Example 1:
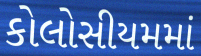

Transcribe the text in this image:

કોલોસીયમમાં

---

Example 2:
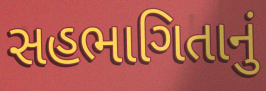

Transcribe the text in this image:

સહભાગિતાનું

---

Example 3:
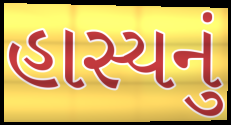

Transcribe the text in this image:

હાસ્યનું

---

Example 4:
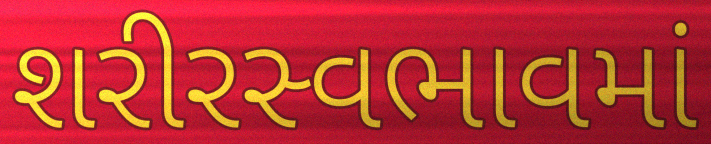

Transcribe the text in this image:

શરીરસ્વભાવમાં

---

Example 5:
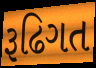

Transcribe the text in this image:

રૂઢિગત